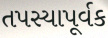
તપસ્યાપૂર્વક